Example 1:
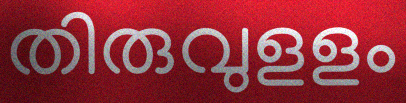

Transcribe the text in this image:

തിരുവുളളം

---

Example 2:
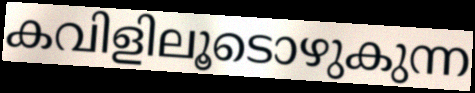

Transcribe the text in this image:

കവിളിലൂടൊഴുകുന്ന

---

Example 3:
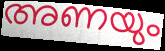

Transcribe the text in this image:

അണയും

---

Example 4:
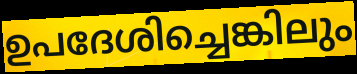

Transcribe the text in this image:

ഉപദേശിച്ചെങ്കിലും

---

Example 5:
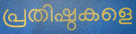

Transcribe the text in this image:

പ്രതിഷ്ഠകളെ